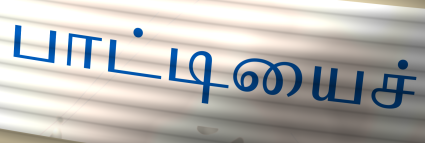
பாட்டியைச்